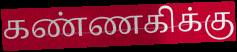
கண்ணகிக்கு